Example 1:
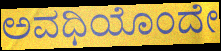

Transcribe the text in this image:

ಅವಧಿಯೊಂದೇ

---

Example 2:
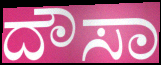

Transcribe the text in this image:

ದೌಸಾ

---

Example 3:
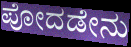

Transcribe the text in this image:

ಪೋದಡೇನು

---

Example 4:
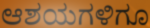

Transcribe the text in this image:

ಆಶಯಗಳಿಗೂ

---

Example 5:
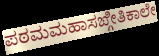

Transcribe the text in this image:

ಪಠಮಮಹಾಸಙ್ಗೀತಿಕಾಲೇ